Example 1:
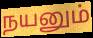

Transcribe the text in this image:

நயனும்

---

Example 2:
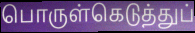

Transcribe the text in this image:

பொருள்கெடுத்துப்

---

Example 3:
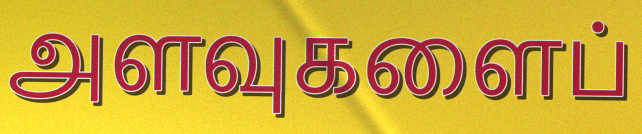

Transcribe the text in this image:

அளவுகளைப்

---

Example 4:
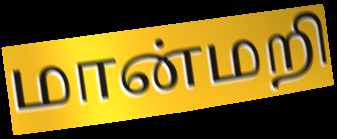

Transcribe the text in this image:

மான்மறி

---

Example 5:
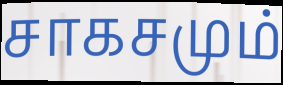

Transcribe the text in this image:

சாகசமும்